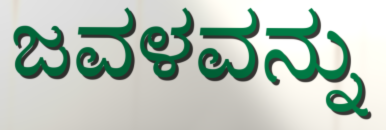
ಜವಳವನ್ನು